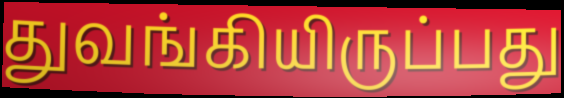
துவங்கியிருப்பது